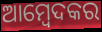
ଆମ୍ବେଦକର